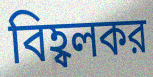
বিহ্বলকর